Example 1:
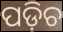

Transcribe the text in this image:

ପଡ଼ିଚ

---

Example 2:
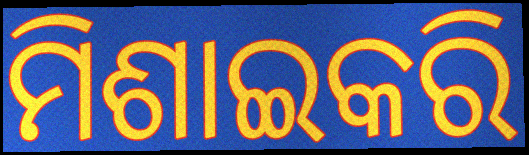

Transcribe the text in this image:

ମିଶାଇକରି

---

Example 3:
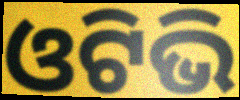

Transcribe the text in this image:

ଓଟିଭି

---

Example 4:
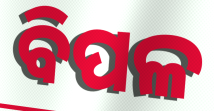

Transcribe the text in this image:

ବିପଳ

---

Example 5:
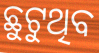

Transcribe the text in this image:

ଛୁଟୁଥିବ